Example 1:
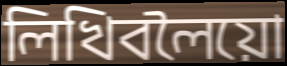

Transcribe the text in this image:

লিখিবলৈয়ো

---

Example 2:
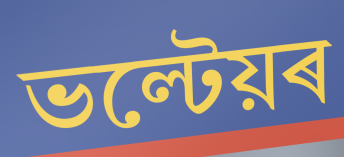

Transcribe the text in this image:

ভল্টেয়ৰ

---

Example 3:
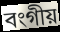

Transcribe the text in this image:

বংগীয়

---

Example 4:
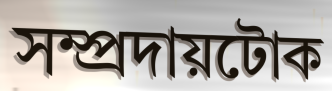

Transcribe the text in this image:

সম্প্ৰদায়টোক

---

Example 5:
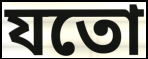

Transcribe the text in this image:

যতো